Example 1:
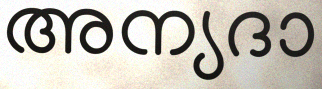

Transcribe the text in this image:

അന്യദാ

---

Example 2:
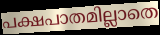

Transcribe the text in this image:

പക്ഷപാതമില്ലാതെ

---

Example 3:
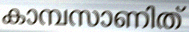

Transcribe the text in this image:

കാമ്പസാണിത്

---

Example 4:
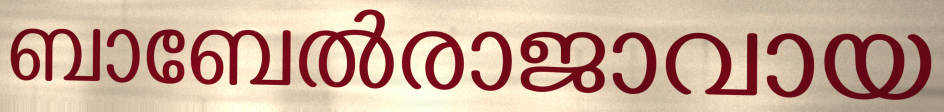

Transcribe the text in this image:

ബാബേൽരാജാവായ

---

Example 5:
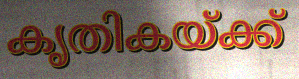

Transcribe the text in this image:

കൃതികയ്ക്ക്